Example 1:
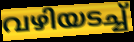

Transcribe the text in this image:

വഴിയടച്ച്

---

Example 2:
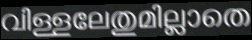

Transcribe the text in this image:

വിള്ളലേതുമില്ലാതെ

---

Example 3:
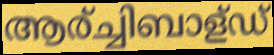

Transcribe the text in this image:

ആര്ച്ചിബാള്ഡ്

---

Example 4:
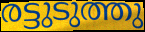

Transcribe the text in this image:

രട്ടുടുത്തു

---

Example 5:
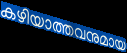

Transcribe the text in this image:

കഴിയാത്തവനുമായ